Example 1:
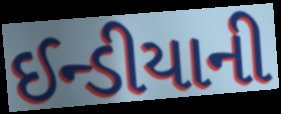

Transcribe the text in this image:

ઈન્ડીયાની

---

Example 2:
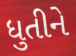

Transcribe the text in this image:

ધુતીને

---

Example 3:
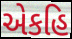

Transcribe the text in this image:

એકહિ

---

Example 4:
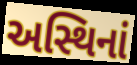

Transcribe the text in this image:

અસ્થિનાં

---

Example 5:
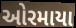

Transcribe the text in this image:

ઓરમાયા